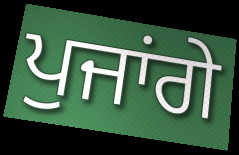
ਪੁਜਾਂਗੇ